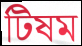
টিষম